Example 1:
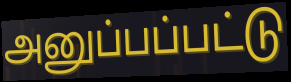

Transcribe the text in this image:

அனுப்பப்பட்டு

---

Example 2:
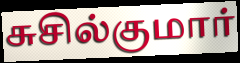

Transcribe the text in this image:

சுசில்குமார்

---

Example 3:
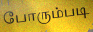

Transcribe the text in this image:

போரும்படி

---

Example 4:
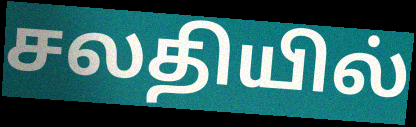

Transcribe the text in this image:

சலதியில்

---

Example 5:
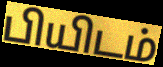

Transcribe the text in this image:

பியிடம்